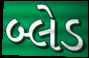
બ્લેડ